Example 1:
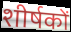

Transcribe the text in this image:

शीर्षकों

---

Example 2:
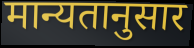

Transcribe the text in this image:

मान्यतानुसार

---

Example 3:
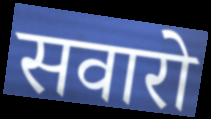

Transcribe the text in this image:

सवारो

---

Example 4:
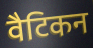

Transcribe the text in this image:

वैटिकन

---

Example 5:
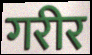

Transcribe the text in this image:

गरीर